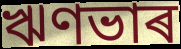
ঋণভাৰ